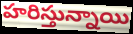
హరిస్తున్నాయి